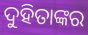
ଦୁହିତାଙ୍କର